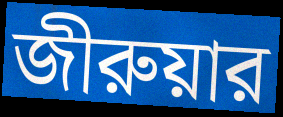
জীরুয়ার